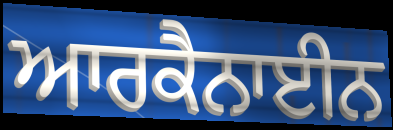
ਆਰਕੈਨਾਈਨ